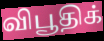
விபூதிக்